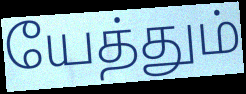
யேத்தும்